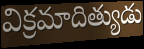
విక్రమాదిత్యుడు